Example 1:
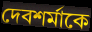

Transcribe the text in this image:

দেবশর্মাকে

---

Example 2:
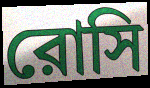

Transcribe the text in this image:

রোসি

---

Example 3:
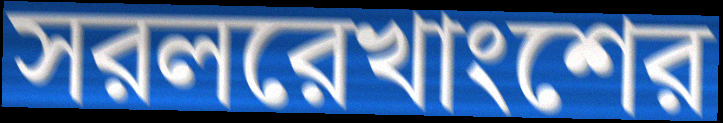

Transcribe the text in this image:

সরলরেখাংশের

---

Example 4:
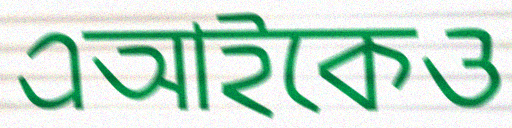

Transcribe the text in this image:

এআইকেও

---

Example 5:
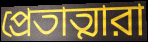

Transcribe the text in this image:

প্রেতাত্মারা